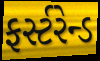
ફર્સ્ટરેન્ડ